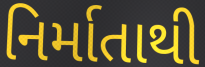
નિર્માતાથી